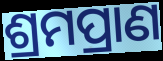
ଶ୍ରମପ୍ରାଣ